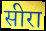
सीरा